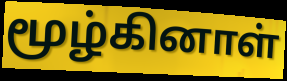
மூழ்கினாள்